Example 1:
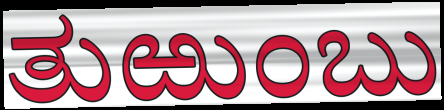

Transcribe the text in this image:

ತುಱುಂಬು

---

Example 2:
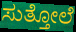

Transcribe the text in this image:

ಸುತ್ತೋಲೆ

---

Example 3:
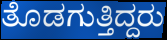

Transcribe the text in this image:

ತೊಡಗುತ್ತಿದ್ದರು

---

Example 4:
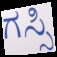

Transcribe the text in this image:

ಗಸ್ಸಿ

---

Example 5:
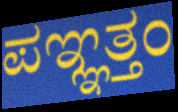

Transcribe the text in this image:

ಪಞ್ಞತ್ತಂ